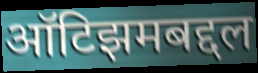
ऑटिझमबद्दल